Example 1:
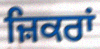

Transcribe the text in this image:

ਜ਼ਿਕਰਾਂ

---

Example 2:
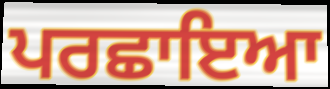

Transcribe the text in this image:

ਪਰਛਾਇਆ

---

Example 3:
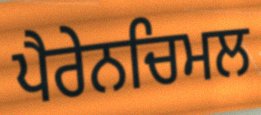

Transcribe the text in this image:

ਪੈਰੇਨਚਿਮਲ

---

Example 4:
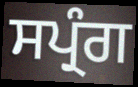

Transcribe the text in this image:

ਸਪ੍ਰੰਗ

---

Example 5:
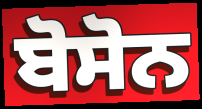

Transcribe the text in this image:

ਬੋਸੋਨ